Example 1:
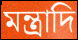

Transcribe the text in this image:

মন্ত্রাদি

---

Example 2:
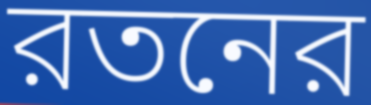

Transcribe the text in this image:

রতনের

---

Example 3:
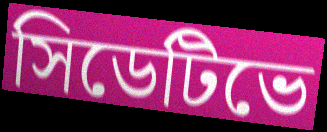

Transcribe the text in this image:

সিডেটিভে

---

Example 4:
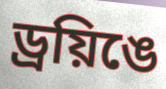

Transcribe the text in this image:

ড্রয়িঙে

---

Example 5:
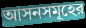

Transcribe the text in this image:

আসনসমূহের